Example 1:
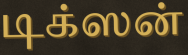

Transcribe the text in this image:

டிக்ஸன்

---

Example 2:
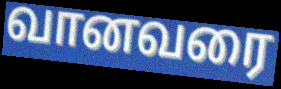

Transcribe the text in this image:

வானவரை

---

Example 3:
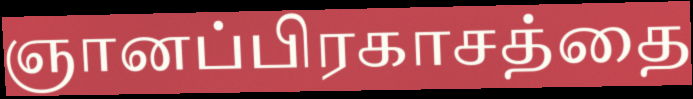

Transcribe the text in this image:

ஞானப்பிரகாசத்தை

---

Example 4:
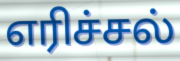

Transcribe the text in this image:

எரிச்சல்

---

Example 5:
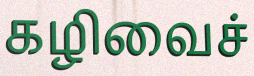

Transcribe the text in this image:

கழிவைச்